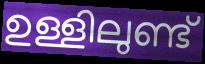
ഉള്ളിലുണ്ട്